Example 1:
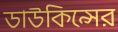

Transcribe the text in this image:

ডাউকিন্সের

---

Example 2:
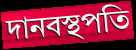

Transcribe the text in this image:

দানবস্থপতি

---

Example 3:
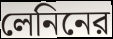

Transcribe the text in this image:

লেনিনের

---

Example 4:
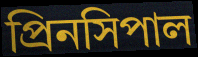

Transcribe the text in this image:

প্রিনসিপাল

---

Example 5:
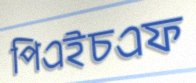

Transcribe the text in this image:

পিএইচএফ